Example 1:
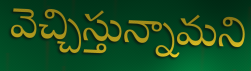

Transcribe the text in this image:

వెచ్చిస్తున్నామని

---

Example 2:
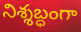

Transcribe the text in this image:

నిశ్శబ్ధంగా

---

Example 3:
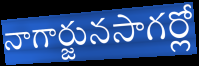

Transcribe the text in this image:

నాగార్జునసాగర్లో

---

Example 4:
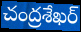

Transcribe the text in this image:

చంద్రశేఖర్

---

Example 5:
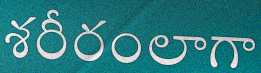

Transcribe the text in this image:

శరీరంలాగా